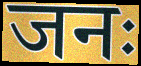
जनः